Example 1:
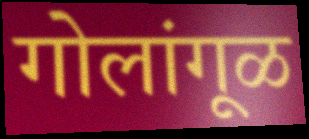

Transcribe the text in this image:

गोलांगूळ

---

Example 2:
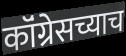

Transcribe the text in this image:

कॉंग्रेसच्याच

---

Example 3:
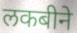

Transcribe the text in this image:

लकबीने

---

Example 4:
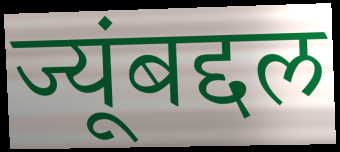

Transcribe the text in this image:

ज्यूंबद्दल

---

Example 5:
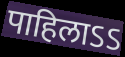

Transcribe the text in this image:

पाहिलाऽऽ